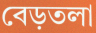
বেড়তলা